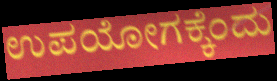
ಉಪಯೋಗಕ್ಕೆಂದು